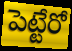
పెట్టేరో